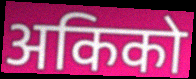
अकिको